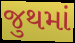
જુથમાં